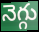
నెగ్గు